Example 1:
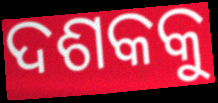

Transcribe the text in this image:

ଦଶକକୁ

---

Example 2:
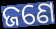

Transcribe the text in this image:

ଜଣେ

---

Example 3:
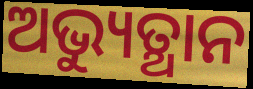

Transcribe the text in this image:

ଅଭ୍ୟୁତ୍ଥାନ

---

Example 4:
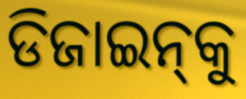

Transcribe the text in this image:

ଡିଜାଇନ୍‌କୁ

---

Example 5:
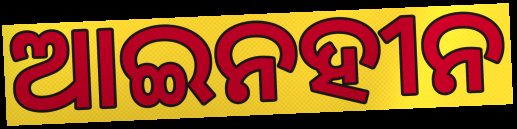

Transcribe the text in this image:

ଆଇନହୀନ